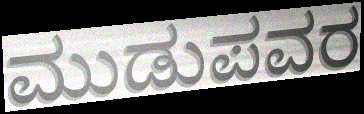
ಮುಡುಪವರ